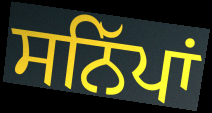
ਸਨਿੱਪਾਂ